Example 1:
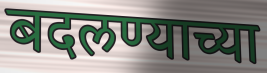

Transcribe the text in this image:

बदलण्याच्या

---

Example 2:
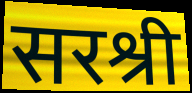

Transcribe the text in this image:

सरश्री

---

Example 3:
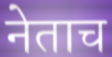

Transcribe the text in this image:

नेताच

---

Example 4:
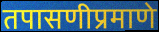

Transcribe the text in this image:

तपासणीप्रमाणे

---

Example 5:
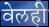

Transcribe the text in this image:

वेलही